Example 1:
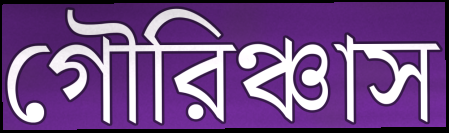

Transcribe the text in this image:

গৌরিঞ্চাস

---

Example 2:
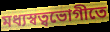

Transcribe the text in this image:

মধ্যস্বত্বভোগীতে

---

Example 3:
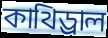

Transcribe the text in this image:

কাথিড্রাল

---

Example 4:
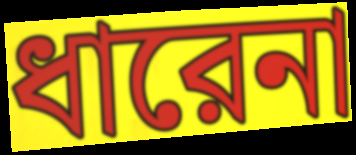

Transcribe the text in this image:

ধারেনা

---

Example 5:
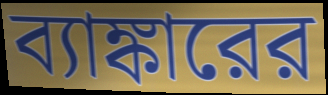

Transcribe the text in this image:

ব্যাঙ্কারের